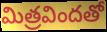
మిత్రవిందతో